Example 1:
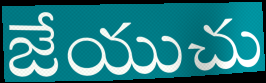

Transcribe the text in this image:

జేయుచు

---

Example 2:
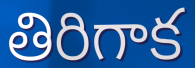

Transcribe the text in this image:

తిరిగాక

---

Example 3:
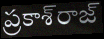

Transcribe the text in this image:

ప్రకాశ్‌రాజ్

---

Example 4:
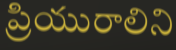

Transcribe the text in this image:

ప్రియురాలిని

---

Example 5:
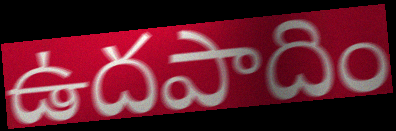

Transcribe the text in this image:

ఉదపాదిం